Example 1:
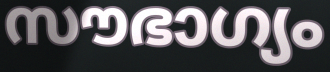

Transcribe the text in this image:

സൗഭാഗ്യം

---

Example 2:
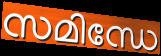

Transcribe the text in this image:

സമിന്ധേ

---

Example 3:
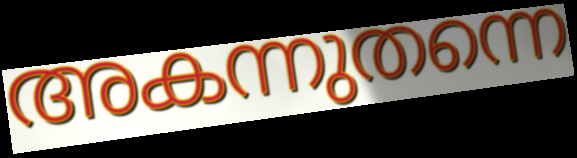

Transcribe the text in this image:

അകന്നുതന്നെ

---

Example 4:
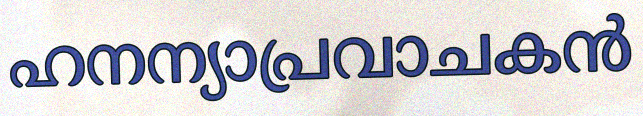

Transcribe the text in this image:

ഹനന്യാപ്രവാചകൻ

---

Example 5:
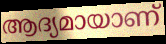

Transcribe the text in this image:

ആദ്യമായാണ്